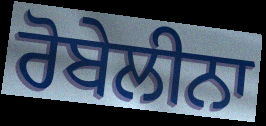
ਰੋਬੇਲੀਨਾ